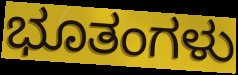
ಭೂತಂಗಳು